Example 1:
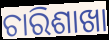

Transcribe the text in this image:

ଚାରିଶାଖା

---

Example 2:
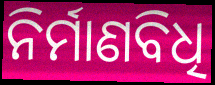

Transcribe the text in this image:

ନିର୍ମାଣବିଧି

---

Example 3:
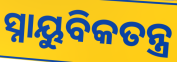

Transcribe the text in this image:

ସ୍ନାୟୁବିକତନ୍ତ୍ର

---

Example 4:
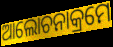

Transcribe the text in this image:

ଆଲୋଚନାକ୍ରମେ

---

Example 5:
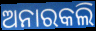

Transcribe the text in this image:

ଅନାରକଲି